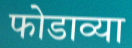
फोडाव्या